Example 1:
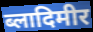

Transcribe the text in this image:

ब्लादिमीर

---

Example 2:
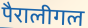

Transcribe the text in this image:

पैरालीगल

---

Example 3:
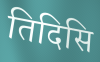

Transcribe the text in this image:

तिदिसि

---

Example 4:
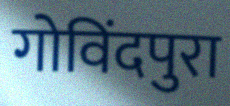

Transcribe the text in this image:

गोविंदपुरा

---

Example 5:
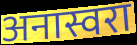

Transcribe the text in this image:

अनास्वरा